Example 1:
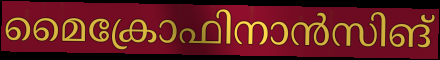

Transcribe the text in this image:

മൈക്രോഫിനാൻസിങ്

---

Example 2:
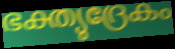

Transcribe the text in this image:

ഭക്ത്യുദ്രേകം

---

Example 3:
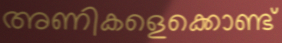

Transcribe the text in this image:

അണികളെക്കൊണ്ട്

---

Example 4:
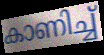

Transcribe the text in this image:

കാണിച്ച്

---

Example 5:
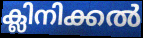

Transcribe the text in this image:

ക്ലിനിക്കൽ